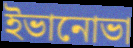
ইভানোভা